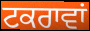
ਟਕਰਾਵਾਂ